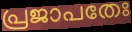
പ്രജാപതേഃ